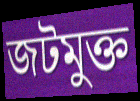
জটমুক্ত